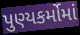
પુણ્યકર્મોમાં